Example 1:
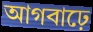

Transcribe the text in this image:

আগবাঢ়ে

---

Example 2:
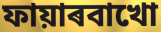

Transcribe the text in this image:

ফায়াৰবাখো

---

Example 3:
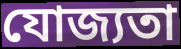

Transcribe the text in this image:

যোজ্যতা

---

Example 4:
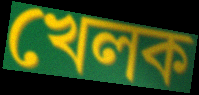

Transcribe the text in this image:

খেলক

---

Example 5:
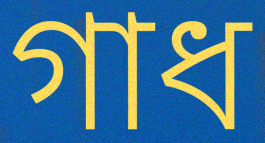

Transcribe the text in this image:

গাধ